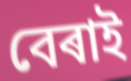
বেৰাই